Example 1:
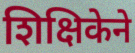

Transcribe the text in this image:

शिक्षिकेने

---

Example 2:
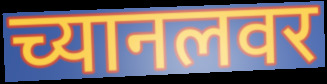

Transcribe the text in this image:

च्यानलवर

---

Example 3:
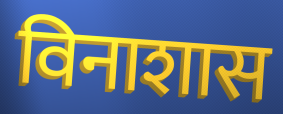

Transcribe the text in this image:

विनाशास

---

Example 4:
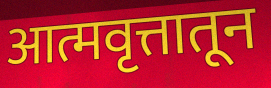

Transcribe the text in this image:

आत्मवृत्तातून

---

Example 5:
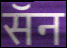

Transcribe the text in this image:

सॅन